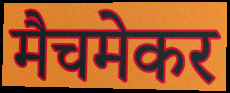
मैचमेकर